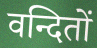
वन्दितों